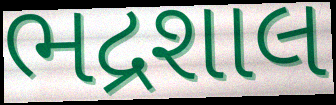
ભદ્રશાલ